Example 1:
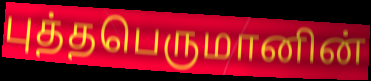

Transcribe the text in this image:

புத்தபெருமானின்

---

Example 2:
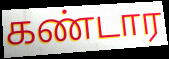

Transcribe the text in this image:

கண்டார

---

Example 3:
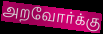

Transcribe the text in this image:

அறவோர்க்கு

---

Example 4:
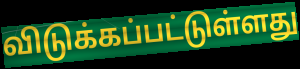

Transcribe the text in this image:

விடுக்கப்பட்டுள்ளது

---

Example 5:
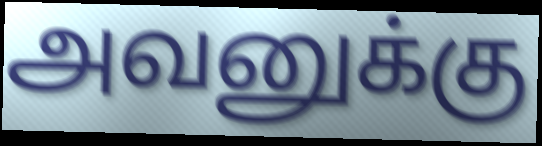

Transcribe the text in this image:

அவனுக்கு